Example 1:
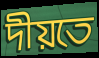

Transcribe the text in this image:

দীয়তে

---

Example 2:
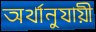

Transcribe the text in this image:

অর্থানুযায়ী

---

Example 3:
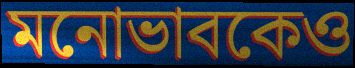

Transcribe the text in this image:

মনোভাবকেও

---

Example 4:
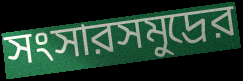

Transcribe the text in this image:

সংসারসমুদ্রের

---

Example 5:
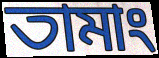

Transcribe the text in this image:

তামাং